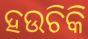
ହଉଚିକି